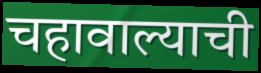
चहावाल्याची